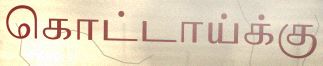
கொட்டாய்க்கு